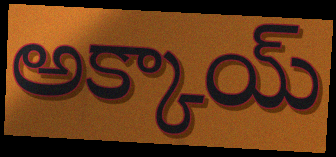
అక్కాయ్